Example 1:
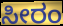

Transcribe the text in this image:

ಸೀರಂ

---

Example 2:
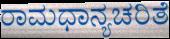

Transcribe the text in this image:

ರಾಮಧಾನ್ಯಚರಿತೆ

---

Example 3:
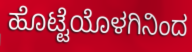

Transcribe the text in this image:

ಹೊಟ್ಟೆಯೊಳಗಿನಿಂದ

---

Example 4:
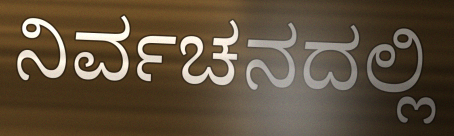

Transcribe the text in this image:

ನಿರ್ವಚನದಲ್ಲಿ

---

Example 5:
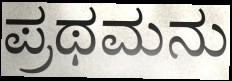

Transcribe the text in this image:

ಪ್ರಥಮನು